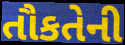
તૌકતેની